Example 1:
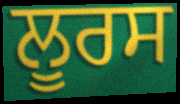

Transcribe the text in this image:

ਲੂਰਸ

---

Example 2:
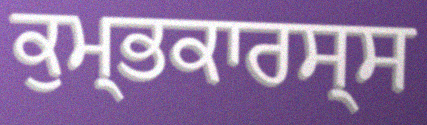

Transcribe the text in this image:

ਕੁਮ੍ਭਕਾਰਸ੍ਸ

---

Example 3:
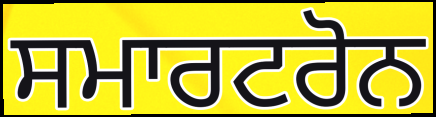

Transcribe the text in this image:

ਸਮਾਰਟਰੋਨ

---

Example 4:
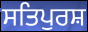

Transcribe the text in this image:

ਸਤਿਪੁਰਸ਼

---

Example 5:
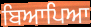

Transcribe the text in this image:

ਬਿਆਪਿਆ